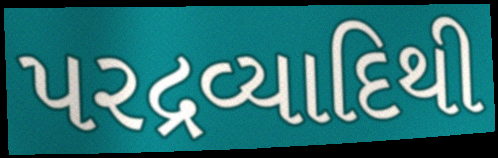
પરદ્રવ્યાદિથી